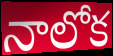
నాలోక